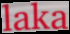
laka